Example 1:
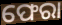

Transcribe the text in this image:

ଫେରା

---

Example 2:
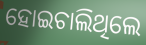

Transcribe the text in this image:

ହୋଇଚାଲିଥିଲେ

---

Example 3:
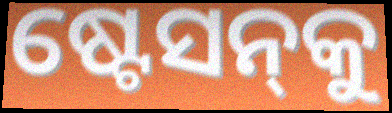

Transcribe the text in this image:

ଷ୍ଟେସନ୍‍କୁ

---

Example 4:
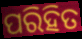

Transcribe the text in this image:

ପରିହିତ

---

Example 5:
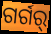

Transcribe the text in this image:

ଗର୍ଗର୍